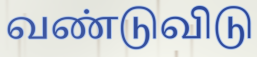
வண்டுவிடு